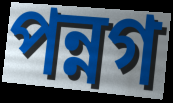
পন্নগ